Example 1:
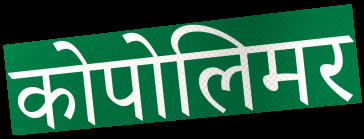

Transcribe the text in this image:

कोपोलिमर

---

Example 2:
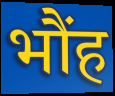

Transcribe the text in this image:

भौंह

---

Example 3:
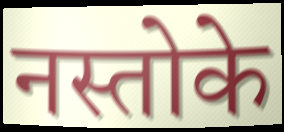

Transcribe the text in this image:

नस्तोके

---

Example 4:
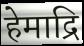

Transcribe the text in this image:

हेमाद्रि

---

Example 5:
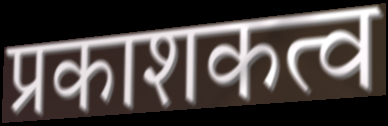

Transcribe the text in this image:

प्रकाशकत्व